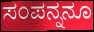
ಸಂಪನ್ನನೂ